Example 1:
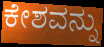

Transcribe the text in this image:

ಕೇಶವನ್ನು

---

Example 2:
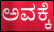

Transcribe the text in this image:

ಅವಕ್ಕೆ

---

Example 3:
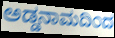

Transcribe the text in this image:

ಅಡ್ಡನಾಮದಿಂದ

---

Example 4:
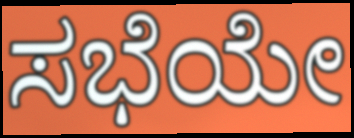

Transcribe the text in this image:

ಸಭೆಯೇ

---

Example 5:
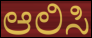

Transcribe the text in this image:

ಆಲಿಸಿ